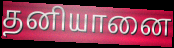
தனியானை